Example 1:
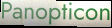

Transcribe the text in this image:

Panopticon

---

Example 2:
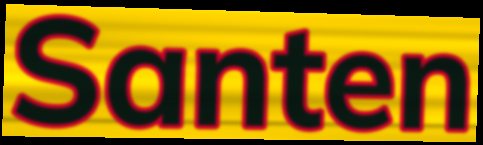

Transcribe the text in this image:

Santen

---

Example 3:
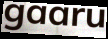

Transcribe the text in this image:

gaaru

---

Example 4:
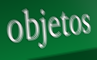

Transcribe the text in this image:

objetos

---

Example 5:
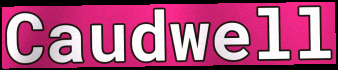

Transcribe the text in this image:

Caudwell